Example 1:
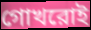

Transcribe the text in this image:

গোখরোই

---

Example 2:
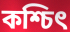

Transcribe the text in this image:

কশ্চিৎ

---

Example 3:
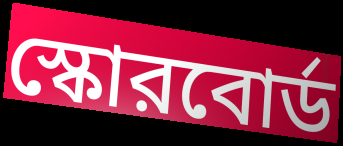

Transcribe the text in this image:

স্কোরবোর্ড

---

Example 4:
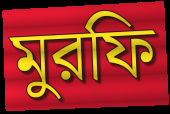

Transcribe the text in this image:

মুরফি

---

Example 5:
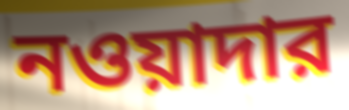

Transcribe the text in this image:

নওয়াদার